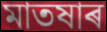
মাতষাৰ